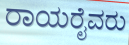
ರಾಯರೈವರು